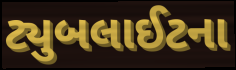
ટ્યુબલાઈટના